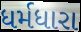
ધર્મધારા